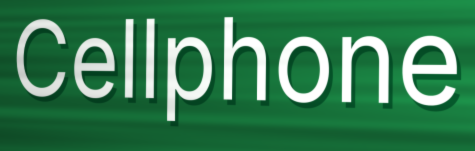
Cellphone